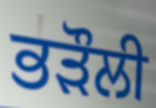
ਭੜੌਲੀ